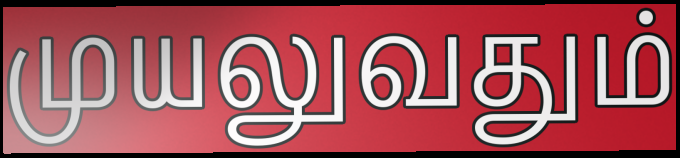
முயலுவதும்